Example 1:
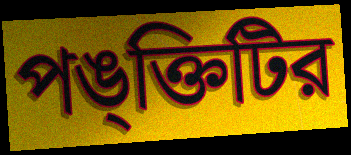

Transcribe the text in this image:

পঙ্‌ক্তিটির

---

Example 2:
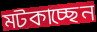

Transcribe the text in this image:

মটকাচ্ছেন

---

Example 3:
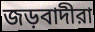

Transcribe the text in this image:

জড়বাদীরা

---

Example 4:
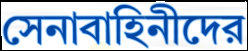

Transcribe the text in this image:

সেনাবাহিনীদের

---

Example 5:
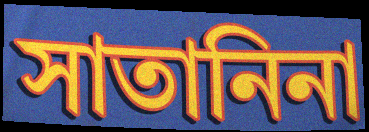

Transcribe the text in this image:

সাতানিনা